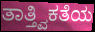
ತಾತ್ತ್ವಿಕತೆಯ